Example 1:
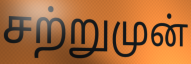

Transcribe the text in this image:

சற்றுமுன்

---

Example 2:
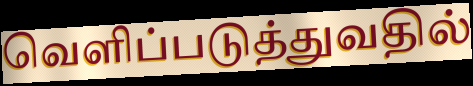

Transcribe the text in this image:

வெளிப்படுத்துவதில்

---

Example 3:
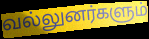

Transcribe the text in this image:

வல்லுனர்களும்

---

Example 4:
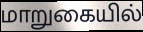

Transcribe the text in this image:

மாறுகையில்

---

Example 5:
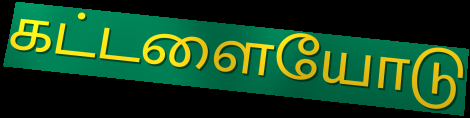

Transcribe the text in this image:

கட்டளையோடு